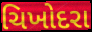
ચિખોદરા